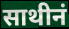
साथीनं